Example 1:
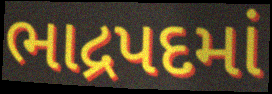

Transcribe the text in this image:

ભાદ્રપદમાં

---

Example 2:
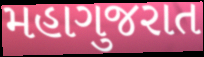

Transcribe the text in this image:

મહાગુજરાત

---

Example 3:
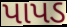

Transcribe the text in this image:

પાપડ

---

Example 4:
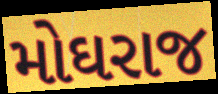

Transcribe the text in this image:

મોઘરાજ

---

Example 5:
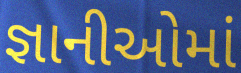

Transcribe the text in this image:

જ્ઞાનીઓમાં